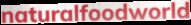
naturalfoodworld